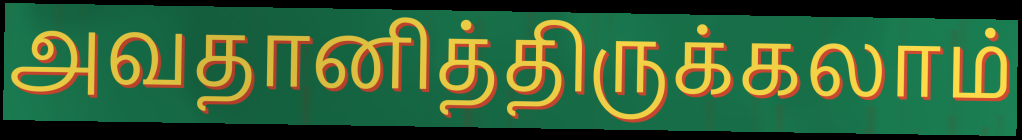
அவதானித்திருக்கலாம்